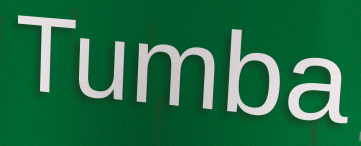
Tumba